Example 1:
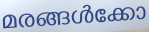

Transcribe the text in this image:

മരങ്ങൾക്കോ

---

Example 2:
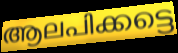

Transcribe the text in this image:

ആലപിക്കട്ടെ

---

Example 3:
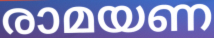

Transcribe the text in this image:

രാമയണ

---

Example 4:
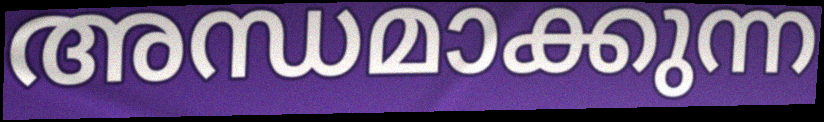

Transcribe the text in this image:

അന്ധമാക്കുന്ന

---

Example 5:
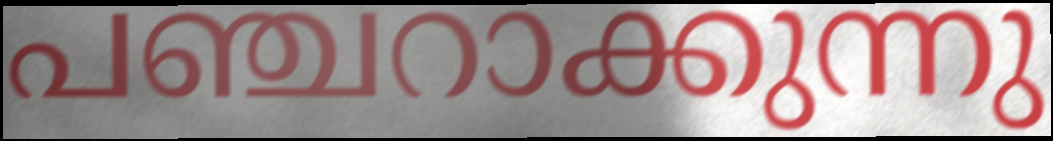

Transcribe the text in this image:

പഞ്ചറാക്കുന്നു